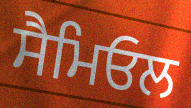
ਸੈਮਿਓਲ